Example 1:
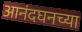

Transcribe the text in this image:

आनंदघनच्या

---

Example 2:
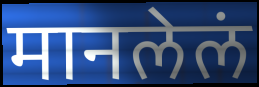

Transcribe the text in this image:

मानलेलं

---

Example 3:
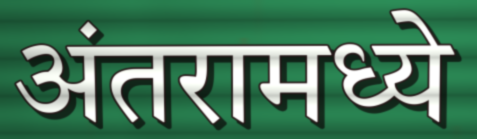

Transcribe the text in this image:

अंतरामध्ये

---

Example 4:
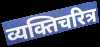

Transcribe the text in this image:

व्यक्तिचरित्र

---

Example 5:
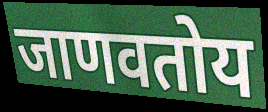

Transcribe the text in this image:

जाणवतोय